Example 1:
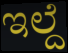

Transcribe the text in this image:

ಇಲ್ದೆ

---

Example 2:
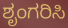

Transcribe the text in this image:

ಶೃಂಗರಿಸಿ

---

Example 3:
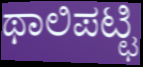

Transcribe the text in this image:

ಥಾಲಿಪಟ್ಟಿ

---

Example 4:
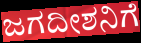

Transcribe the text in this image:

ಜಗದೀಶನಿಗೆ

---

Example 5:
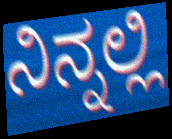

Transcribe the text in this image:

ನಿನ್ನಲ್ಲಿ